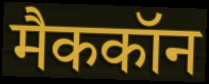
मैककॉन